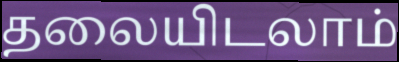
தலையிடலாம்